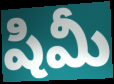
షిమీ